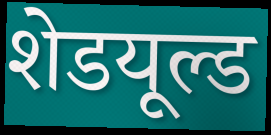
शेडयूल्ड